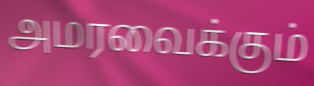
அமரவைக்கும்